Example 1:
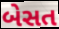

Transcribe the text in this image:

બેસત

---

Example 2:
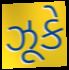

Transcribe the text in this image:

ઝૂકે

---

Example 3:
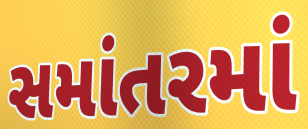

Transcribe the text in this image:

સમાંતરમાં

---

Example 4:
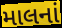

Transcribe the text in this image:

માલનાં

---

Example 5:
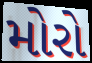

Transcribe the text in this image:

મોરો